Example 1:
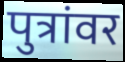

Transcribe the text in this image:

पुत्रांवर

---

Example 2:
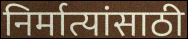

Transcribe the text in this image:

निर्मात्यांसाठी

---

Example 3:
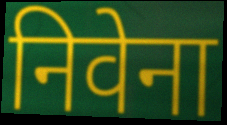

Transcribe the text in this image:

निवेना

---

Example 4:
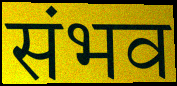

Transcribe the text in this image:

संभव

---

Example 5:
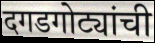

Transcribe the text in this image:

दगडगोट्यांची